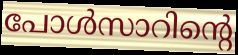
പോൾസാറിന്റെ